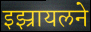
इझ्रायलने